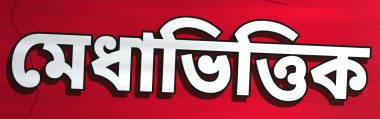
মেধাভিত্তিক